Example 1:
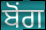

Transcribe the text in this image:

ਬੋਂਗ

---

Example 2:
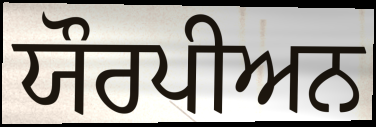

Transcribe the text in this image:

ਯੌਰਪੀਅਨ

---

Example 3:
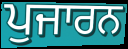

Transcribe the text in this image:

ਪੁਜਾਰਨ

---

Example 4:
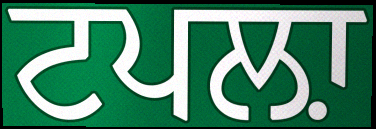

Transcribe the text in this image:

ਟਪਲ਼ਾ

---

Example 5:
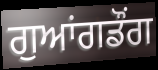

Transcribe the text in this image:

ਗੁਆਂਗਡੌਂਗ